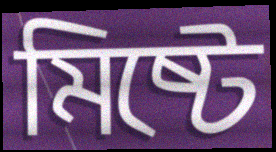
মিষ্টে